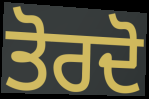
ਤੋਰਦੋ